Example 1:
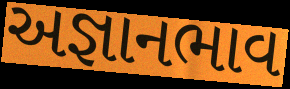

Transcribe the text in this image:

અજ્ઞાનભાવ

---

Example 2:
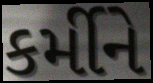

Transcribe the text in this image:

કર્મીને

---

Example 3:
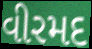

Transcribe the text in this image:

વીરમદ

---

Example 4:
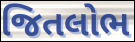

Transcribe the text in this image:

જિતલોભ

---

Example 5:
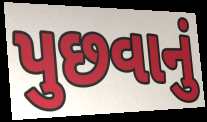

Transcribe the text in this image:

પુછવાનું